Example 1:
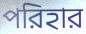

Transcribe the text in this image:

পরিহার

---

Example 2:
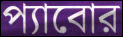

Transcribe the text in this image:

প্যাবোর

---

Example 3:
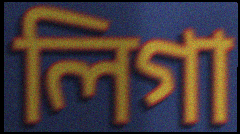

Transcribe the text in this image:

লিগা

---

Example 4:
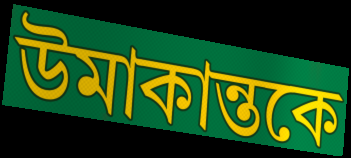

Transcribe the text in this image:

উমাকান্তকে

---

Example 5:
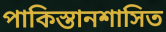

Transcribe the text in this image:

পাকিস্তানশাসিত